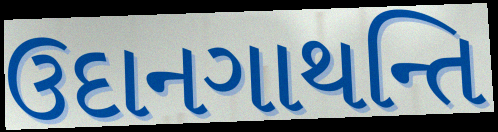
ઉદાનગાથન્તિ